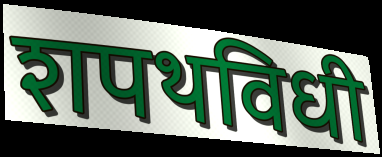
शपथविधी